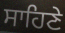
ਸਾਹਿਣੇ